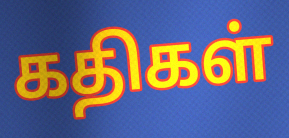
கதிகள்